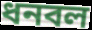
ধনবল